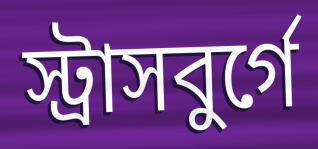
স্ট্রাসবুর্গে